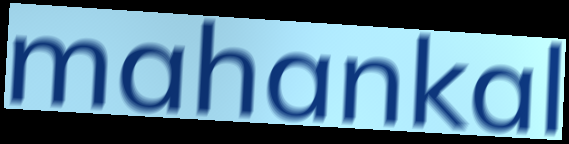
mahankal